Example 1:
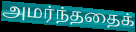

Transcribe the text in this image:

அமர்ந்ததைக்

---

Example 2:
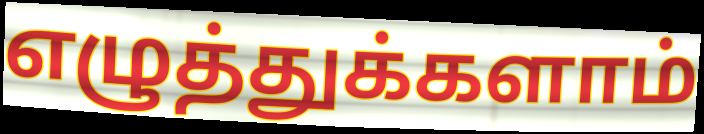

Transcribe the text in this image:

எழுத்துக்களாம்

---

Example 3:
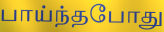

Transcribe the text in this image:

பாய்ந்தபோது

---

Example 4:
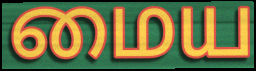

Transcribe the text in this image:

மைய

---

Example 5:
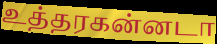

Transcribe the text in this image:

உத்தரகன்னடா